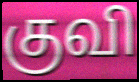
குவி